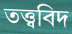
তত্ত্ববিদ